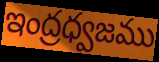
ఇంద్రధ్వజము